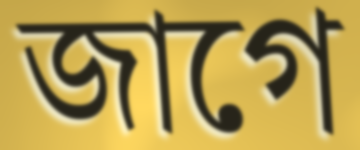
জাগে